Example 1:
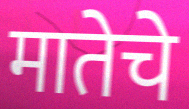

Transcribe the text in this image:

मातेचे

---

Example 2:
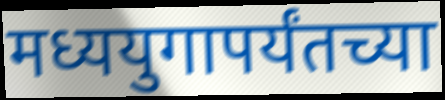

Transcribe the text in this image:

मध्ययुगापर्यंतच्या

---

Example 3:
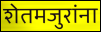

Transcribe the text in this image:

शेतमजुरांना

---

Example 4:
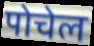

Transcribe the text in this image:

पोचेल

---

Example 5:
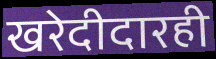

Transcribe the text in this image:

खरेदीदारही